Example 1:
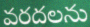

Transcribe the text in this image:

వరదలను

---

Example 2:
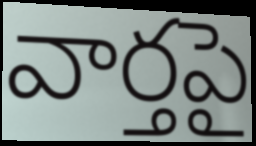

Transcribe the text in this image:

వార్తపై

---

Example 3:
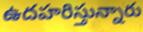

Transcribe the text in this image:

ఉదహరిస్తున్నారు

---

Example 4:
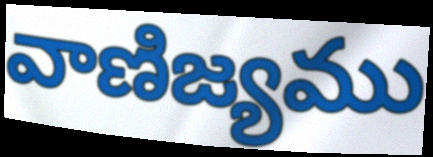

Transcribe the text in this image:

వాణిజ్యము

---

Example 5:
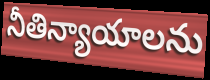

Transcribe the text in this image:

నీతిన్యాయాలను